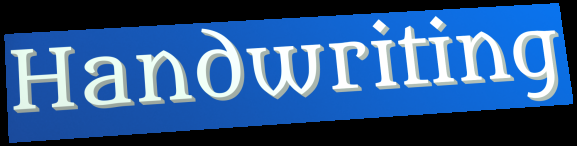
Handwriting